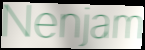
Nenjam